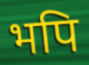
भपि